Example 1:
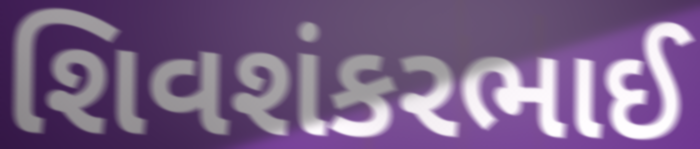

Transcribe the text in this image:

શિવશંકરભાઈ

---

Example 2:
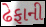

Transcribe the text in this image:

ઢેફાની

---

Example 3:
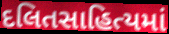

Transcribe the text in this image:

દલિતસાહિત્યમાં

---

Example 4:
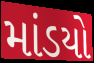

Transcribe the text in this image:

માંડયો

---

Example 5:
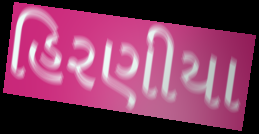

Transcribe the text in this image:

હિરણીયા